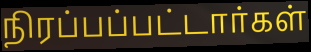
நிரப்பப்பட்டார்கள்